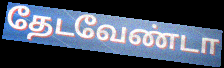
தேடவேண்டா